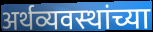
अर्थव्यवस्थांच्या